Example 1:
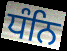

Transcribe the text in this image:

ਧੰਨਿ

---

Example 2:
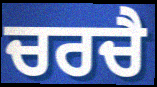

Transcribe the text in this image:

ਚਰਚੈ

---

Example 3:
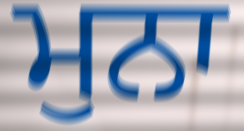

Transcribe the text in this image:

ਮੁਨਾ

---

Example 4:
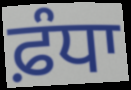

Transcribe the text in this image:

ਫ਼ੰਧਾ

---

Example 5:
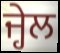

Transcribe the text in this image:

ਜ੍ਹੇਲ